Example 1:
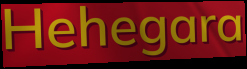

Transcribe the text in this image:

Hehegara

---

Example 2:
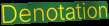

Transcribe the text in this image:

Denotation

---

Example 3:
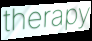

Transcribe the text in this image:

therapy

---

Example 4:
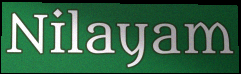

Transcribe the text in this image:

Nilayam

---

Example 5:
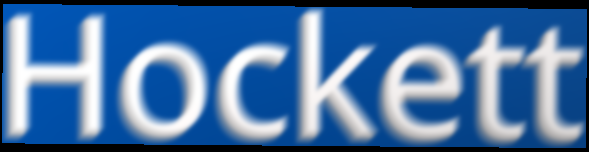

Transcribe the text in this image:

Hockett